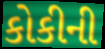
કોકીની